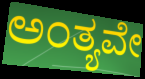
ಅಂತ್ಯವೇ